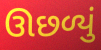
ઊછળ્યું